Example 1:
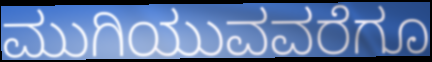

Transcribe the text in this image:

ಮುಗಿಯುವವರೆಗೂ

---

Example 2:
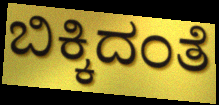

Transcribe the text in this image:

ಬಿಕ್ಕಿದಂತೆ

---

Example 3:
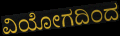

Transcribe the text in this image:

ವಿಯೋಗದಿಂದ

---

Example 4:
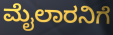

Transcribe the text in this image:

ಮೈಲಾರನಿಗೆ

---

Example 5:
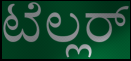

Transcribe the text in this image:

ಟೆಲ್ಲರ್